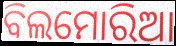
ବିଲମୋରିଆ